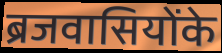
ब्रजवासियोंके